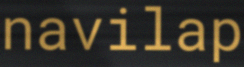
navilap